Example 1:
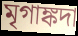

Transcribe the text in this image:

মৃগাঙ্কদা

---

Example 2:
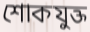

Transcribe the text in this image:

শোকযুক্ত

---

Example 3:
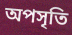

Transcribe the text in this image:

অপসৃতি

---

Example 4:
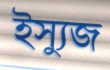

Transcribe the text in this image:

ইস্যুজ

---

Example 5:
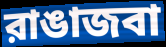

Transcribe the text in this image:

রাঙাজবা